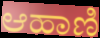
ಆಹಾಣಿ